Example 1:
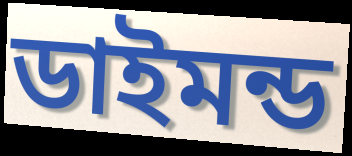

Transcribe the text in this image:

ডাইমন্ড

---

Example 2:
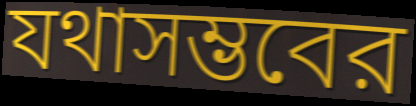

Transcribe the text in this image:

যথাসম্ভবের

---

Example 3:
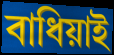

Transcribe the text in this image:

বাধিয়াই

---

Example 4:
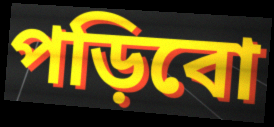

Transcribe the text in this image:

পড়িবো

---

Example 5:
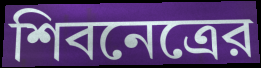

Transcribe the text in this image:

শিবনেত্রের